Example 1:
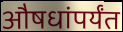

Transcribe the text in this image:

औषधांपर्यंत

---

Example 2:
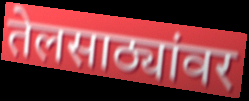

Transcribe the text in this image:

तेलसाठ्यांवर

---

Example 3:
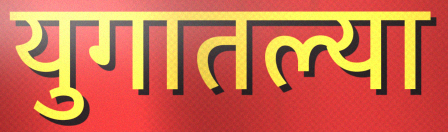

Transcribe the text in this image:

युगातल्या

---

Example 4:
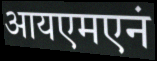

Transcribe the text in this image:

आयएमएनं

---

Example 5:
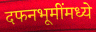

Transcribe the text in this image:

दफनभूमींमध्ये